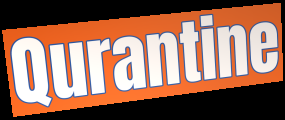
Qurantine